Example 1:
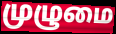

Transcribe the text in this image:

முழுமை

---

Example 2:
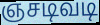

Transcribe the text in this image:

ஞசடிவடி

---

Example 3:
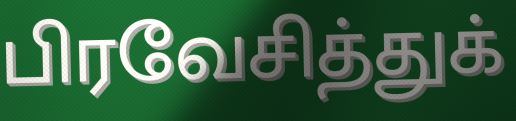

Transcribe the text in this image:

பிரவேசித்துக்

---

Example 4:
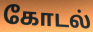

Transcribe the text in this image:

கோடல்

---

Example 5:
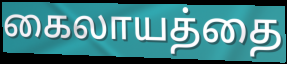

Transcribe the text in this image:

கைலாயத்தை